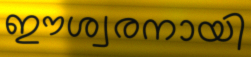
ഈശ്വരനായി